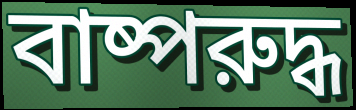
বাষ্পরুদ্ধ